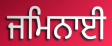
ਜਮਿਨਾਈ